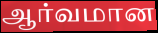
ஆர்வமான